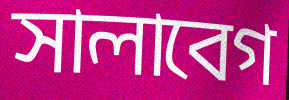
সালাবেগ